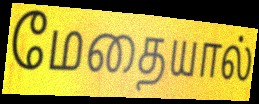
மேதையால்